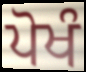
ਪੋਖੰ